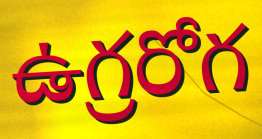
ఉగ్రరోగ